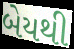
બેયથી